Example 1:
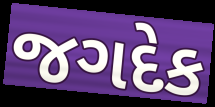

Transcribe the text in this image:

જગદેક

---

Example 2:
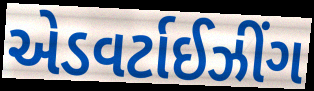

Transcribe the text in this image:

એડવર્ટાઈઝીંગ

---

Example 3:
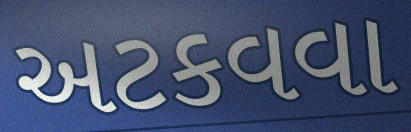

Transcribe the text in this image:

અટકવવા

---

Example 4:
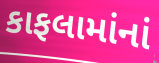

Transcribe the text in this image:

કાફલામાંનાં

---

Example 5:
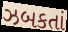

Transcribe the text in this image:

ઝબકતાં